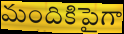
మందికిపైగా